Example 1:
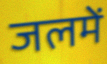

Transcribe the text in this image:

जलमें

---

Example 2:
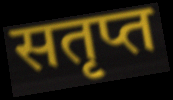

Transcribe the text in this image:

सतृप्त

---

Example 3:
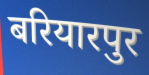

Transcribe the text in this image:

बरियारपुर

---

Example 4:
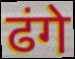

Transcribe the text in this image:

ढंगे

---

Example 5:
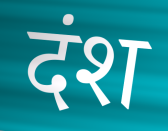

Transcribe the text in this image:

दंश